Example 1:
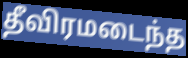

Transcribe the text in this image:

தீவிரமடைந்த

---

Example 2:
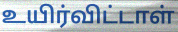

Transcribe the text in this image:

உயிர்விட்டாள்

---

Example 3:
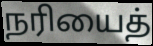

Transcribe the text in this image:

நரியைத்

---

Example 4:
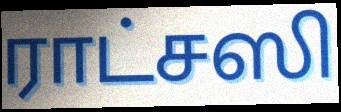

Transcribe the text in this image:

ராட்சஸி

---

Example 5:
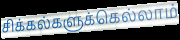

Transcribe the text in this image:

சிக்கல்களுக்கெல்லாம்